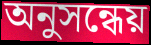
অনুসন্ধেয়